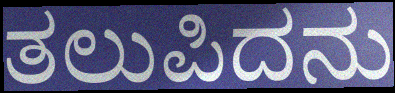
ತಲುಪಿದನು